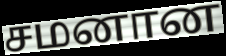
சமனான